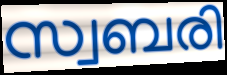
സ്വബരി